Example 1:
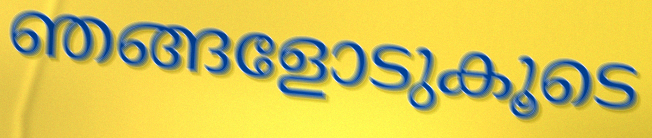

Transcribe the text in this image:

ഞങ്ങളോടുകൂടെ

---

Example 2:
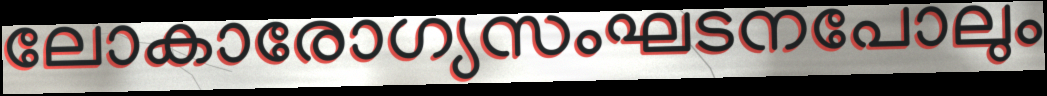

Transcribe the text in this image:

ലോകാരോഗ്യസംഘടനപോലും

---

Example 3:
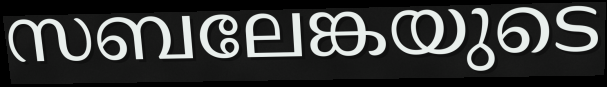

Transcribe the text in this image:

സബലേങ്കയുടെ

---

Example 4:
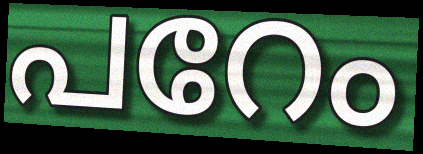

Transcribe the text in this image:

പറേം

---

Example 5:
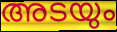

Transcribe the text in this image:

അടയും